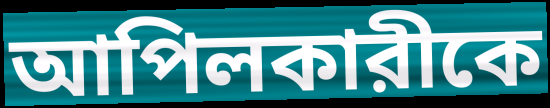
আপিলকারীকে